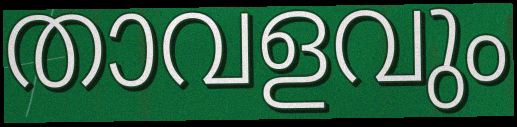
താവളവും